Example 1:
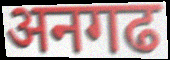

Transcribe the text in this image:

अनगढ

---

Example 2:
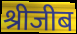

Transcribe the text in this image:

श्रीजीब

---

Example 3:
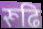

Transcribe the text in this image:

रूढि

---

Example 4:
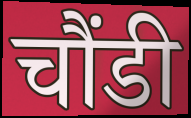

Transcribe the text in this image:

चौंडी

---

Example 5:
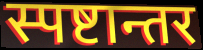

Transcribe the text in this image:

स्पष्टान्तर